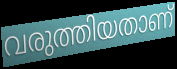
വരുത്തിയതാണ്